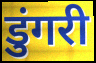
डुंगरी